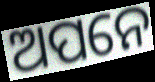
ଅପନେ